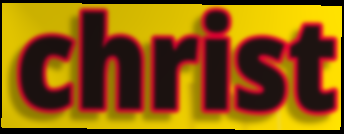
christ